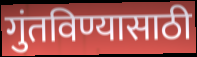
गुंतविण्यासाठी